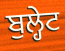
ਬੁਲ੍ਹੇਟ